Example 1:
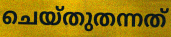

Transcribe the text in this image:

ചെയ്തുതന്നത്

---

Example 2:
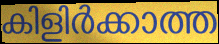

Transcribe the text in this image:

കിളിർക്കാത്ത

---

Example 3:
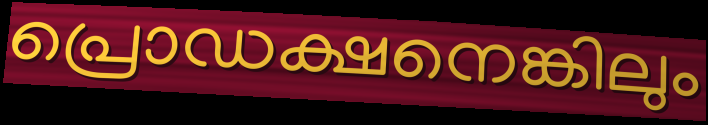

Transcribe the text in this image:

പ്രൊഡക്ഷനെങ്കിലും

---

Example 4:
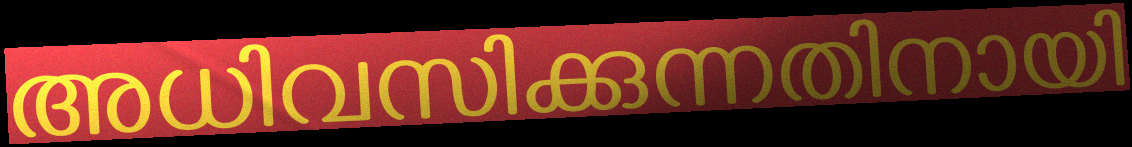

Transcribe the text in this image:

അധിവസിക്കുന്നതിനായി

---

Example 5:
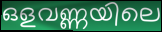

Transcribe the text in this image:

ഒളവണ്ണയിലെ